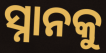
ସ୍ନାନକୁ